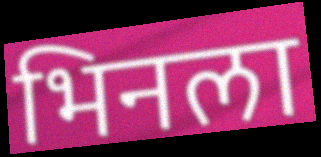
भिनला